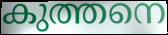
കുത്തനെ